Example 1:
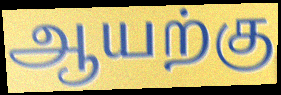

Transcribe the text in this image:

ஆயற்கு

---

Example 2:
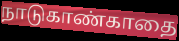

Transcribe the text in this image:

நாடுகாண்காதை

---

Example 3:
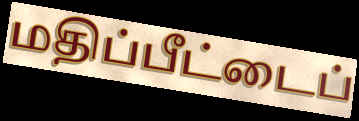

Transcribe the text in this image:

மதிப்பீட்டைப்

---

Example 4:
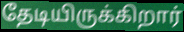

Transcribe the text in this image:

தேடியிருக்கிறார்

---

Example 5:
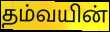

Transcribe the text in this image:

தம்வயின்